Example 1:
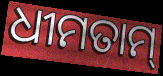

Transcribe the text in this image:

ଧୀମତାମ୍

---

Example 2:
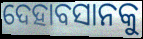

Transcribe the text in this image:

ଦେହାବସାନକୁ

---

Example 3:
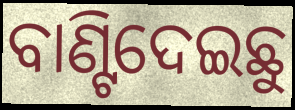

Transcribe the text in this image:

ବାଣ୍ଟିଦେଇଛୁ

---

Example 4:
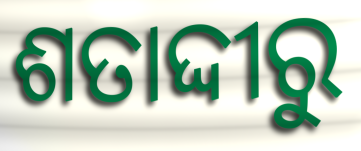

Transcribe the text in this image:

ଶତାଦ୍ଦୀରୁ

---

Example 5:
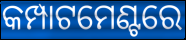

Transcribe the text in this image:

କମ୍ପାଟମେଣ୍ଟରେ